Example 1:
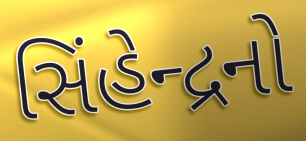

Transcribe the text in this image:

સિંહેન્દ્રનો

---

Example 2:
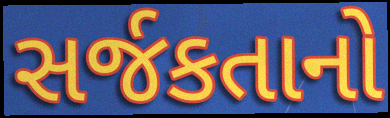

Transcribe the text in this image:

સર્જકતાનો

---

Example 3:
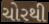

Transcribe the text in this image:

ચોરથી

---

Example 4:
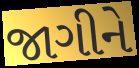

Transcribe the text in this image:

જાગીને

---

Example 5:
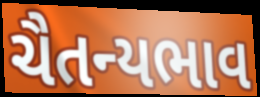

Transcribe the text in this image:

ચૈતન્યભાવ